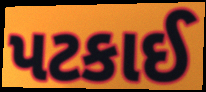
પટકાઈ